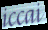
iccai